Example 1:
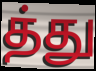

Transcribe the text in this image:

த்து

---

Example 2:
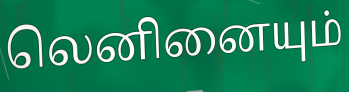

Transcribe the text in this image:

லெனினையும்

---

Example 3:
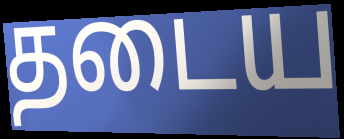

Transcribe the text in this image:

தடைய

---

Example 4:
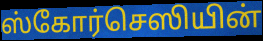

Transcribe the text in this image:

ஸ்கோர்செஸியின்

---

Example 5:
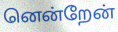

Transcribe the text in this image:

னென்றேன்